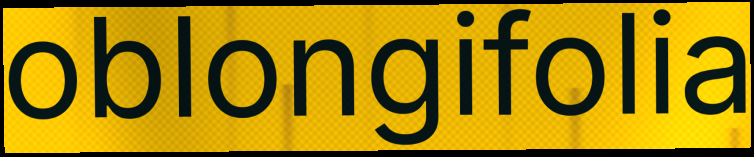
oblongifolia